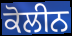
ਕੋਲੀਨ